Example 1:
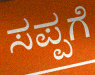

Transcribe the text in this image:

ಸಪ್ಪಗೆ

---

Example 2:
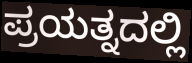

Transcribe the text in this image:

ಪ್ರಯತ್ನದಲ್ಲಿ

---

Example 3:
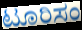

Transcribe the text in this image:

ಟೂರಿಸಂ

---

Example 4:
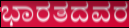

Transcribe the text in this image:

ಭಾರತದವರ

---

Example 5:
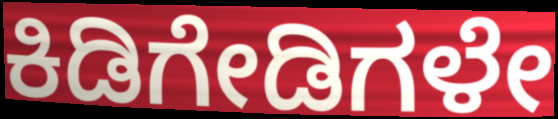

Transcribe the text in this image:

ಕಿಡಿಗೇಡಿಗಳೇ